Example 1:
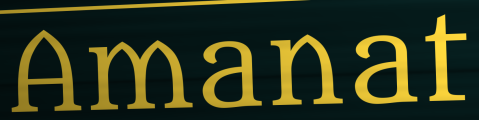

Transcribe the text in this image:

Amanat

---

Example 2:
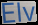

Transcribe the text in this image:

Elv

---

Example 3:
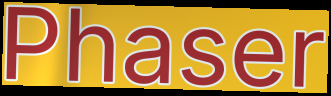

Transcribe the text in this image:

Phaser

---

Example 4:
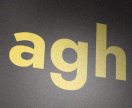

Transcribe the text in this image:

agh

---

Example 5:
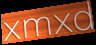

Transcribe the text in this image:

xmxd